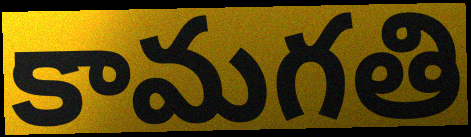
కామగతి